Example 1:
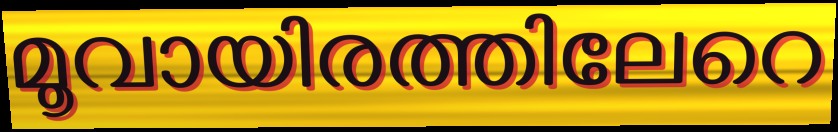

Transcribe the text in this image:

മൂവായിരത്തിലേറെ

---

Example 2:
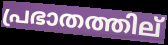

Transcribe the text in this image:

പ്രഭാതത്തില്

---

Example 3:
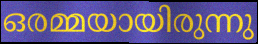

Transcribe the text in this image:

ഒരമ്മയായിരുന്നു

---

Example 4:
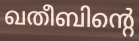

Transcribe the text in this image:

ഖതീബിന്റെ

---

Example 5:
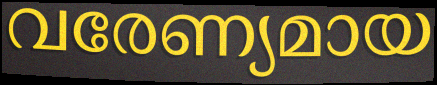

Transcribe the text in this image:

വരേണ്യമായ